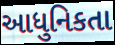
આધુનિકતા